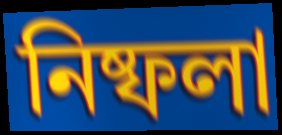
নিষ্ফলা